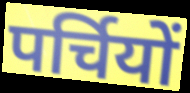
पर्चियों